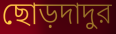
ছোড়দাদুর